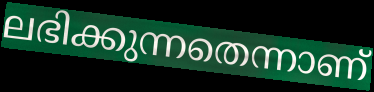
ലഭിക്കുന്നതെന്നാണ്